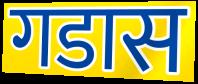
गडास